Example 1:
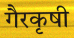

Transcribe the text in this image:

गैरकृषी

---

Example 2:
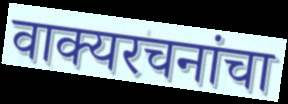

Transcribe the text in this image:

वाक्यरचनांचा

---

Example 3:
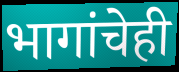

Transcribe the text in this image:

भागांचेही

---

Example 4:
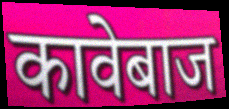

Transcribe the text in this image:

कावेबाज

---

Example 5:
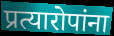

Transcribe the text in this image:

प्रत्यारोपांना